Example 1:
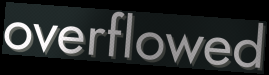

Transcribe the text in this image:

overflowed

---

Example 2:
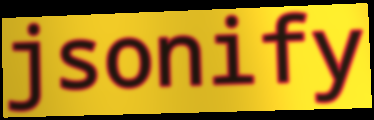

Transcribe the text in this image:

jsonify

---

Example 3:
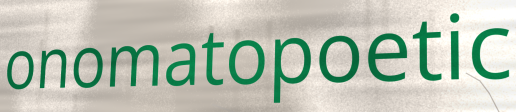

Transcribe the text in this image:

onomatopoetic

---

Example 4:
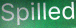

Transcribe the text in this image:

Spilled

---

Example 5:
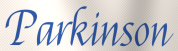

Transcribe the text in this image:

Parkinson